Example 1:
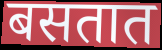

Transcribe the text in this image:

बसतात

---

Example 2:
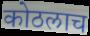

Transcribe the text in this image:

कोठलाच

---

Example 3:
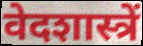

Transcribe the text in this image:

वेदशास्त्रें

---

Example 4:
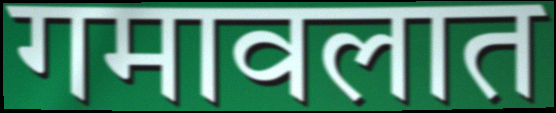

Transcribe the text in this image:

गमावलात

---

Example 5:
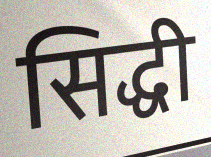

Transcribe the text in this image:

सिद्धी